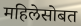
महिलेसोबत